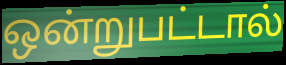
ஒன்றுபட்டால்